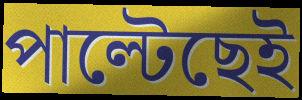
পাল্টেছেই